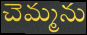
చెమ్మను